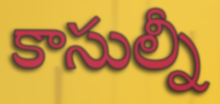
కాసుల్నీ